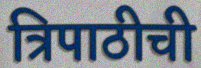
त्रिपाठीची